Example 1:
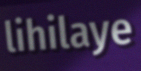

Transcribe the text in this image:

lihilaye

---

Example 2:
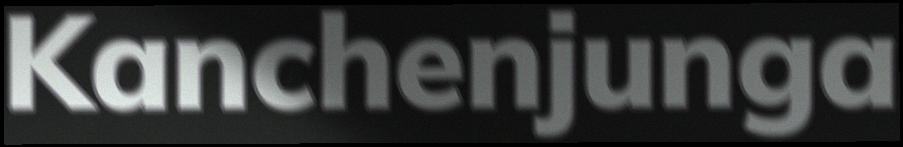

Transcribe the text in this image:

Kanchenjunga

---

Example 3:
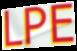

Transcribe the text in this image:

LPE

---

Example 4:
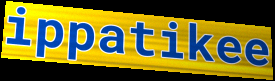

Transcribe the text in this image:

ippatikee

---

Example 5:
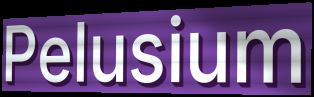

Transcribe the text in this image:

Pelusium